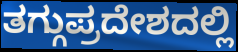
ತಗ್ಗುಪ್ರದೇಶದಲ್ಲಿ